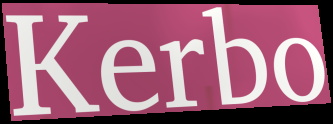
Kerbo